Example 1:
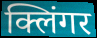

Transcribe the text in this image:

क्लिंगर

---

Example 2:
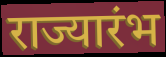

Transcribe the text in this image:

राज्यारंभ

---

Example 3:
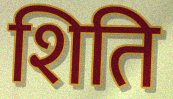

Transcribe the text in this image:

शिति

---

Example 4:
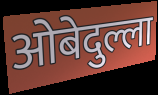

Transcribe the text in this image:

ओबेदुल्ला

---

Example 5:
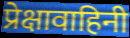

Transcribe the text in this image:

प्रेक्षावाहिनी